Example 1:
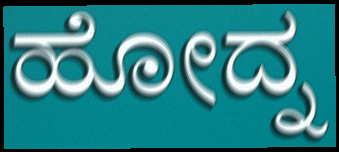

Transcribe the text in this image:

ಹೋದ್ನ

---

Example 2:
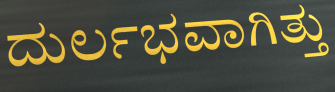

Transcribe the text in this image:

ದುರ್ಲಭವಾಗಿತ್ತು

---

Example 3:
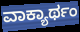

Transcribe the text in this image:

ವಾಕ್ಯಾರ್ಥಂ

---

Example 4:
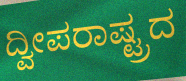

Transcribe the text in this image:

ದ್ವೀಪರಾಷ್ಟ್ರದ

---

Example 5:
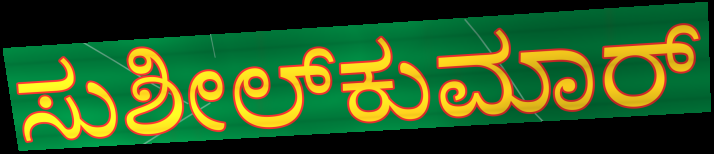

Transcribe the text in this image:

ಸುಶೀಲ್‌ಕುಮಾರ್